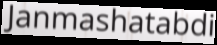
Janmashatabdi